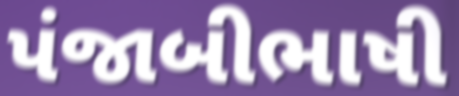
પંજાબીભાષી